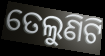
ତେଲୁଣିଟି